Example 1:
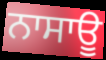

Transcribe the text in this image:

ਨਾਸਾਊ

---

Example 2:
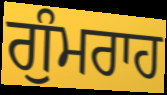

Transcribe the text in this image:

ਗੁੰਮਰਾਹ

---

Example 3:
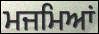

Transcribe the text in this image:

ਮਜਮਿਆਂ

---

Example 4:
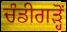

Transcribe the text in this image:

ਚੰਡੀਗੜ੍ਹੋਂ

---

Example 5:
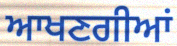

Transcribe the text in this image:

ਆਖਣਗੀਆਂ